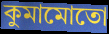
কুমামোতো